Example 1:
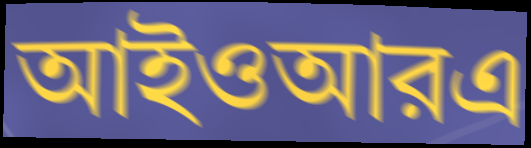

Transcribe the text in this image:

আইওআরএ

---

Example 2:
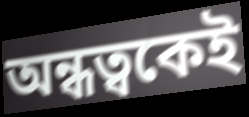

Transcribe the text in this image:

অন্ধত্বকেই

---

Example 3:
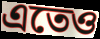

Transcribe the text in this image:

এতেও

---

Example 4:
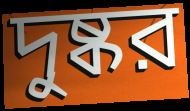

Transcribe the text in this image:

দুষ্কর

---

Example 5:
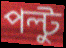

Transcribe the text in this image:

পল্টু